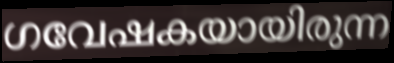
ഗവേഷകയായിരുന്ന